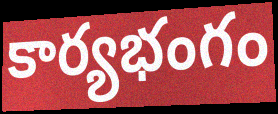
కార్యభంగం